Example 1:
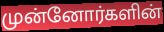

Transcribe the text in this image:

முன்னோர்களின்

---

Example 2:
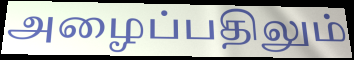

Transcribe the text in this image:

அழைப்பதிலும்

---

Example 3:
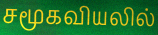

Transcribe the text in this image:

சமூகவியலில்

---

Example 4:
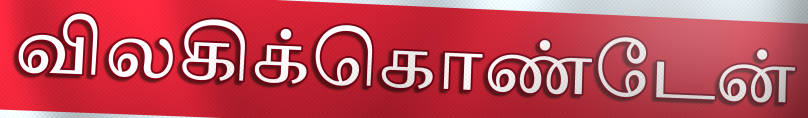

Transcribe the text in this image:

விலகிக்கொண்டேன்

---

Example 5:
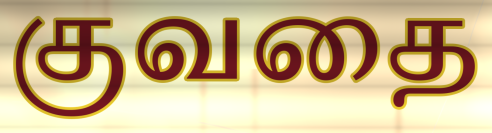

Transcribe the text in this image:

குவதை